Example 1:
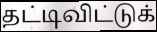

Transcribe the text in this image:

தட்டிவிட்டுக்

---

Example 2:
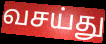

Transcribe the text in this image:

வசய்து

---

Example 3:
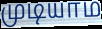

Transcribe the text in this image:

முடியாம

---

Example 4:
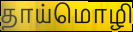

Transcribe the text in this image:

தாய்மொழி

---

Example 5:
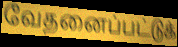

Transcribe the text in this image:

வேதனைப்பட்டுக்